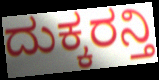
ದುಕ್ಕರನ್ತಿ